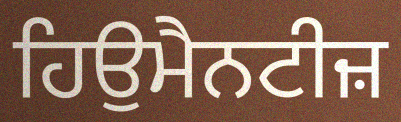
ਹਿਉਮੈਨਟੀਜ਼